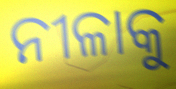
ନୀଳାକୁ